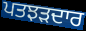
ਪਤਝੜਦਾਰ